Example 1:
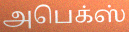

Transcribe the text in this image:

அபெக்ஸ்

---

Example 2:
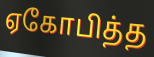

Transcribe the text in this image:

ஏகோபித்த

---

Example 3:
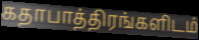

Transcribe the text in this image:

கதாபாத்திரங்களிடம்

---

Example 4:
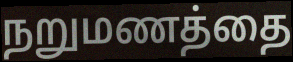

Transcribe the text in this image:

நறுமணத்தை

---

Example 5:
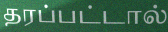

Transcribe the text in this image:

தரப்பட்டால்